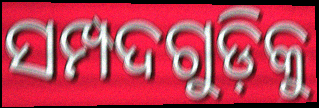
ସମ୍ପଦଗୁଡ଼ିକୁ